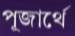
পূজার্থে